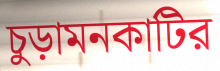
চুড়ামনকাটির